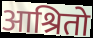
आश्रितो